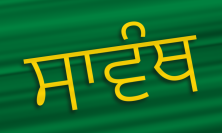
ਸਾਵੰਥ